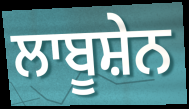
ਲਾਬੂਸ਼ੇਨ